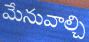
మేనువాల్చి